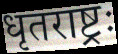
धृतराष्ट्रः